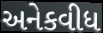
અનેકવીધ